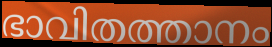
ഭാവിതത്താനം